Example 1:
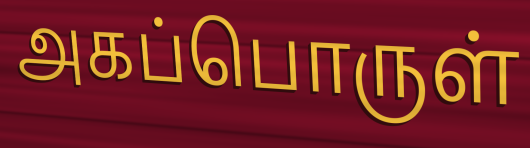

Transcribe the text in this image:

அகப்பொருள்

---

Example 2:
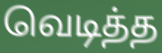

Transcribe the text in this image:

வெடித்த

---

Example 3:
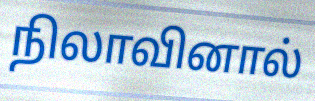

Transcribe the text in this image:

நிலாவினால்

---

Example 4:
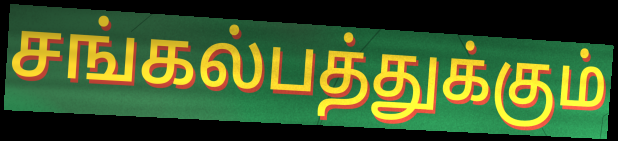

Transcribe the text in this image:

சங்கல்பத்துக்கும்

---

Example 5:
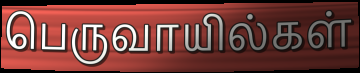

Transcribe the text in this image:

பெருவாயில்கள்